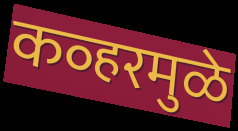
कव्हरमुळे